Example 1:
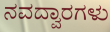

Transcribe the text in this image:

ನವದ್ವಾರಗಳು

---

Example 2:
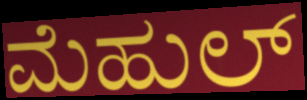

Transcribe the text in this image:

ಮೆಹುಲ್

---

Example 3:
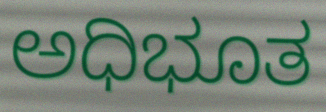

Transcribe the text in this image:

ಅಧಿಭೂತ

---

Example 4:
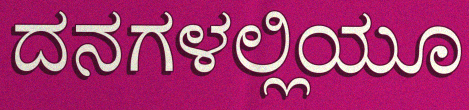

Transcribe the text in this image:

ದನಗಳಲ್ಲಿಯೂ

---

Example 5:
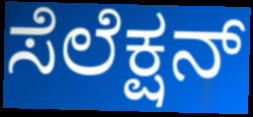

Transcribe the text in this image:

ಸೆಲೆಕ್ಷನ್